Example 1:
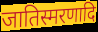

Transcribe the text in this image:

जातिस्मरणादि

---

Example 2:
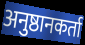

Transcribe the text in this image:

अनुष्ठानकर्ता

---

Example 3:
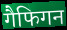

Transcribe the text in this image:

गैफिगन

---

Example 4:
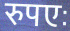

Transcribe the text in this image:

रुपएः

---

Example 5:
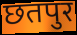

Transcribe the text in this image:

छतपुर